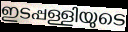
ഇടപ്പള്ളിയുടെ